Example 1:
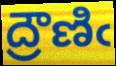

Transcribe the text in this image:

ద్రౌణిఁ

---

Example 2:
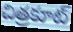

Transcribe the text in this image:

చిత్రకూట్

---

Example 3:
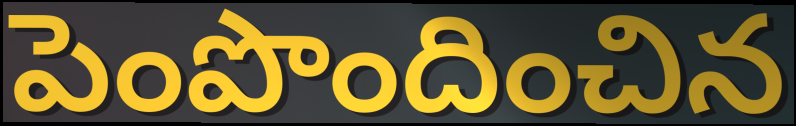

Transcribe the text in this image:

పెంపొందించిన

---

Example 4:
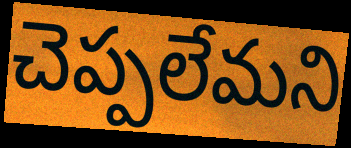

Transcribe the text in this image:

చెప్పలేమని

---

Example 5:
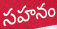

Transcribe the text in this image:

సహనం